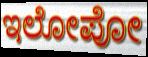
ಇಲೋಪೋ